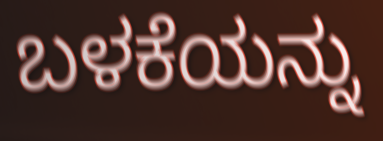
ಬಳಕೆಯನ್ನು